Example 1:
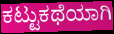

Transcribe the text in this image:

ಕಟ್ಟುಕಥೆಯಾಗಿ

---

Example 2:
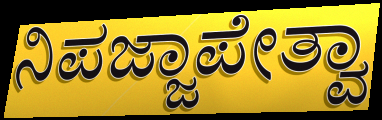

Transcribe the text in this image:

ನಿಪಜ್ಜಾಪೇತ್ವಾ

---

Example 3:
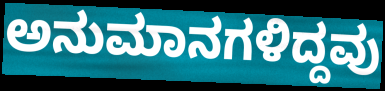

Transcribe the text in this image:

ಅನುಮಾನಗಳಿದ್ದವು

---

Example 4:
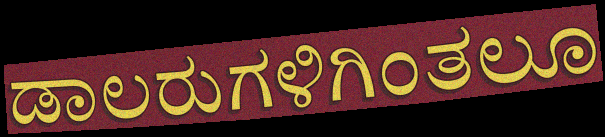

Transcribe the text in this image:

ಡಾಲರುಗಳಿಗಿಂತಲೂ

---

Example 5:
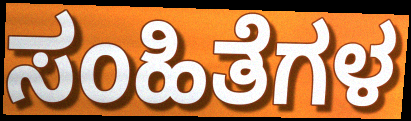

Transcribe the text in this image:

ಸಂಹಿತೆಗಳ